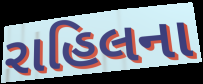
રાહિલના